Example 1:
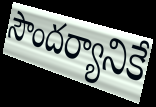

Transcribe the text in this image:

సౌందర్యానికే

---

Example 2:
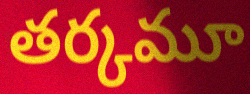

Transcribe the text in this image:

తర్కమూ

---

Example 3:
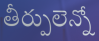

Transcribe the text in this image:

తీర్పులెన్నో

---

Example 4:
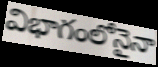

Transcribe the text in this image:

విభాగంలోనైనా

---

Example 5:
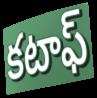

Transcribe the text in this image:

కటాఫ్